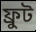
ফ্রুট